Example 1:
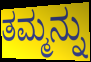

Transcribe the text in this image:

ತಮ್ಮನ್ನು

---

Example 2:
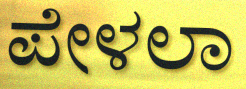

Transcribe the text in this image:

ಪೇಳಲಾ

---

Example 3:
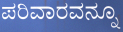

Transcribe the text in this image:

ಪರಿವಾರವನ್ನೂ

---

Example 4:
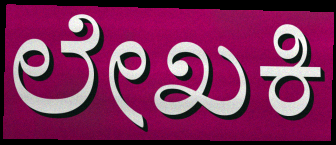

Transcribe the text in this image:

ಲೇಖಕಿ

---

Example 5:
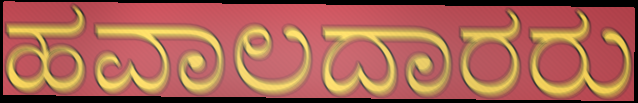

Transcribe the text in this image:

ಹವಾಲದಾರರು